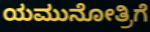
ಯಮುನೋತ್ರಿಗೆ